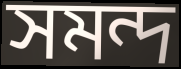
সমন্দ